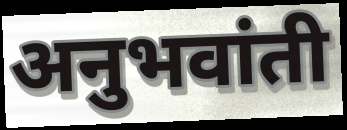
अनुभवांती